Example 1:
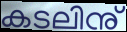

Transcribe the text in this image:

കടലിനു്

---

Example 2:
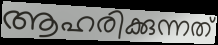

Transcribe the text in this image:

ആഹരിക്കുന്നത്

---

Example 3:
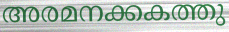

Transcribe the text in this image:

അരമനക്കകത്തു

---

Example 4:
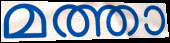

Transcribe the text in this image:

മത്താ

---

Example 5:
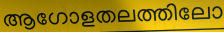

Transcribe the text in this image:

ആഗോളതലത്തിലോ